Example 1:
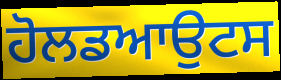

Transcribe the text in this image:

ਹੋਲਡਆਉਟਸ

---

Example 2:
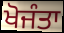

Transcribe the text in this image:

ਖੋਜੰਤਾ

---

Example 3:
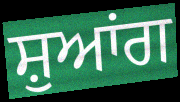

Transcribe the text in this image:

ਸ਼ੁਆਂਗ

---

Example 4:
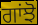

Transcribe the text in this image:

ਗਾਂਝੋ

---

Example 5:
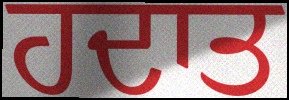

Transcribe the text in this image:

ਹਦਾਤ